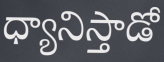
ధ్యానిస్తాడో